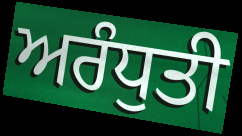
ਅਰੰਧੁਤੀ